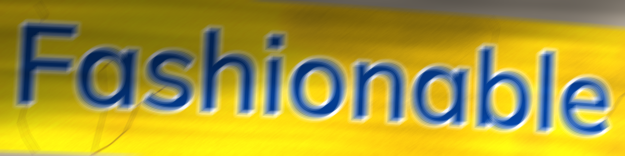
Fashionable